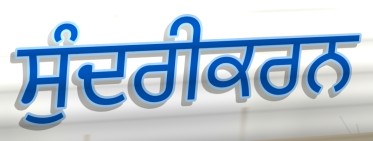
ਸੁੰਦਰੀਕਰਨ